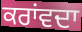
ਕਰਾਂਵਦਾ